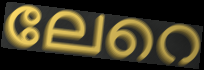
ലേറെ